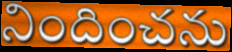
నిందించను